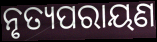
ନୃତ୍ୟପରାୟଣ